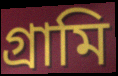
গ্রামি